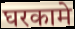
घरकामे